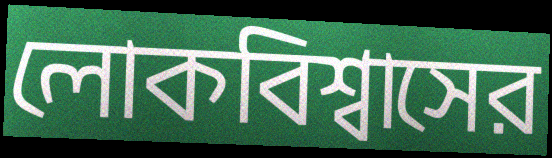
লোকবিশ্বাসের